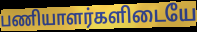
பணியாளர்களிடையே